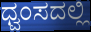
ಧ್ವಂಸದಲ್ಲಿ